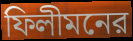
ফিলীমনের